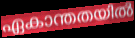
ഏകാന്തതയിൽ